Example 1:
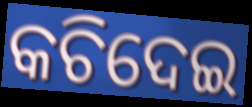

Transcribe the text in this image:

କଚିଦେଇ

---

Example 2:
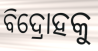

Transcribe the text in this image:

ବିଦ୍ରୋହକୁ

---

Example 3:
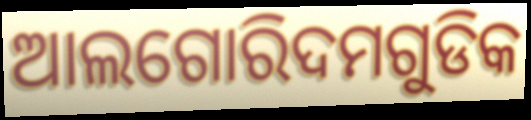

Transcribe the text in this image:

ଆଲଗୋରିଦମଗୁଡିକ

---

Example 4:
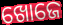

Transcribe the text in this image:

ଖୋଜେ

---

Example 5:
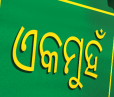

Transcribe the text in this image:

ଏକମୁହଁ